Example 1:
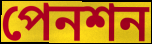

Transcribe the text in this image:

পেনশন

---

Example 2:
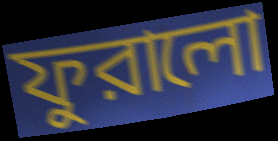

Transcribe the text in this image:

ফুরালো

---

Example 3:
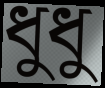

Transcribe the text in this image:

ধুধু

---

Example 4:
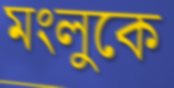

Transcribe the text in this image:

মংলুকে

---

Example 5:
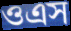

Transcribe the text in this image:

ওএস